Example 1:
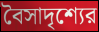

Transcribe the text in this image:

বৈসাদৃশ্যের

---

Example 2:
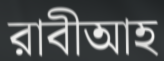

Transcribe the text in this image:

রাবীআহ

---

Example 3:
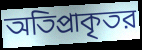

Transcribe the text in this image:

অতিপ্রাকৃতর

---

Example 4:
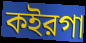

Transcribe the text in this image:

কইরগা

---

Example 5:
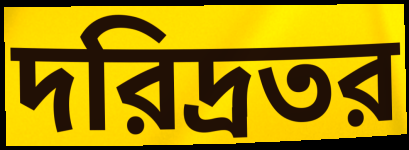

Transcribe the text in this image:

দরিদ্রতর